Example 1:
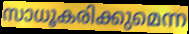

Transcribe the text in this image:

സാധൂകരിക്കുമെന്ന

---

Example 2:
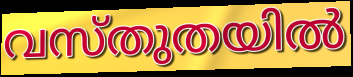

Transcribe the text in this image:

വസ്തുതയിൽ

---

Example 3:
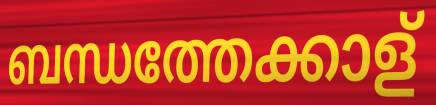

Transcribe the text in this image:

ബന്ധത്തേക്കാള്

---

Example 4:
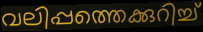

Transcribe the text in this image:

വലിപ്പത്തെക്കുറിച്ച്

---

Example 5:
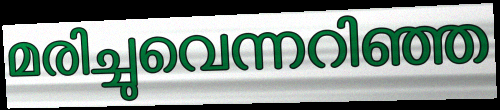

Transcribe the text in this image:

മരിച്ചുവെന്നറിഞ്ഞ